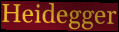
Heidegger